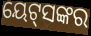
ୟେଟ୍‌ସଙ୍କର